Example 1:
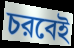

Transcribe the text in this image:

চরবেই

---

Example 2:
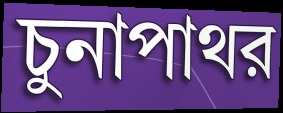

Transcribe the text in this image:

চুনাপাথর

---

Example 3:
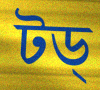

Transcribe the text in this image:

টড্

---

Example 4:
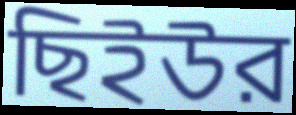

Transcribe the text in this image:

ছিইউর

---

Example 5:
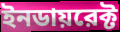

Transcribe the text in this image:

ইনডায়রেক্ট